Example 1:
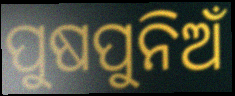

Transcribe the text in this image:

ପୁଷପୁନିଅଁ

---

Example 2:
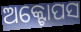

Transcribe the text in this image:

ଅକ୍ଟୋପସ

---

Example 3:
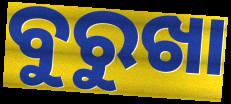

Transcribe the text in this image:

ବୁରୁଖା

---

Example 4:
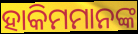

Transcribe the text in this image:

ହାକିମମାନଙ୍କ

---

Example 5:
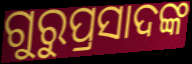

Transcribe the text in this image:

ଗୁରୁପ୍ରସାଦଙ୍କ